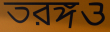
তরঙ্গও